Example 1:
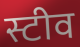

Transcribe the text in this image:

स्‍टीव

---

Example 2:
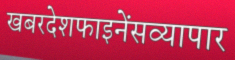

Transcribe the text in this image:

खबरदेशफाइनेंसव्यापार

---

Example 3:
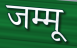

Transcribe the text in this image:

जम्मू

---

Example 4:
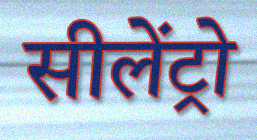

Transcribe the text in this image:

सीलेंट्रो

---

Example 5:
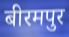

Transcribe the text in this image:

बीरमपुर